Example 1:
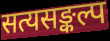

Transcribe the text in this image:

सत्यसङ्कल्प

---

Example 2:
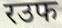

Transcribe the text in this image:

रउफ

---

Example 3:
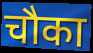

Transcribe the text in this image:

चौका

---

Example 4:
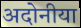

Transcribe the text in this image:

अदोनीया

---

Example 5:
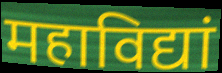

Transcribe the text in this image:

महाविद्यां